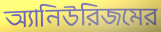
অ্যানিউরিজমের